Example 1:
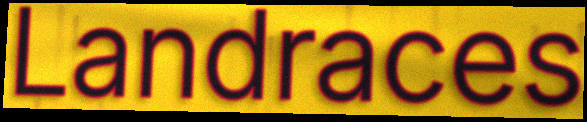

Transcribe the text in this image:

Landraces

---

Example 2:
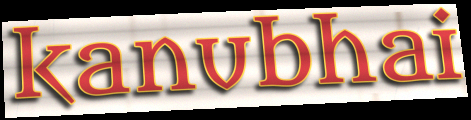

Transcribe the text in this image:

kanubhai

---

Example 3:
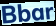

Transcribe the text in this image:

Bbar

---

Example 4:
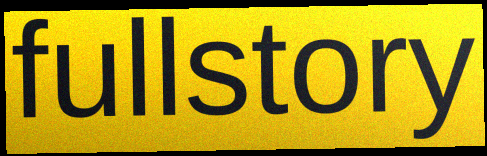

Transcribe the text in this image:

fullstory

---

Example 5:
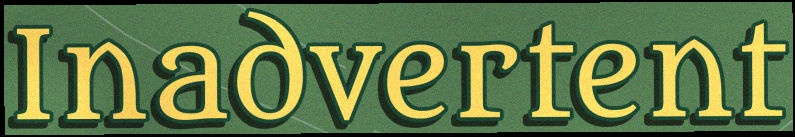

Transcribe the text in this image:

Inadvertent